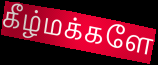
கீழ்மக்களே